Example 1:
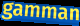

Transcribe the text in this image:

gamman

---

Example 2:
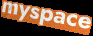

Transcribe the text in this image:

myspace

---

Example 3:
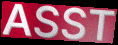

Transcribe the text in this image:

ASST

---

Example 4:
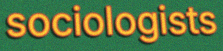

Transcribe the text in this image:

sociologists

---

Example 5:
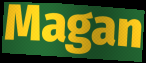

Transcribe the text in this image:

Magan